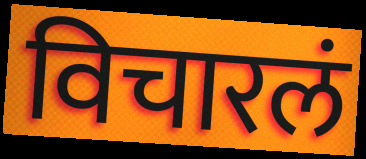
विचारलं